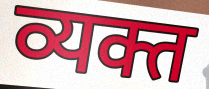
व्यक्‍त